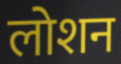
लोशन